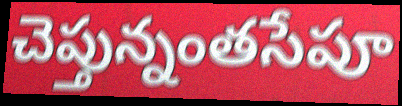
చెప్తున్నంతసేపూ